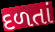
દળતાં